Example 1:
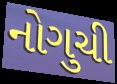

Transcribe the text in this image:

નોગુચી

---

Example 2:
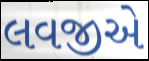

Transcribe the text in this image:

લવજીએ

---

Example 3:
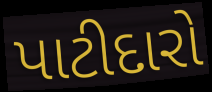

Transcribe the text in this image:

પાટીદારો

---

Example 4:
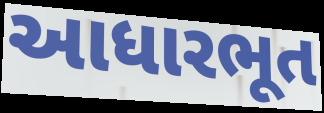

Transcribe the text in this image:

આધારભૂત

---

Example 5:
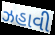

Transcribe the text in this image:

ઝહાવી